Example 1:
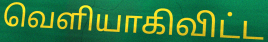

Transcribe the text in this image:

வெளியாகிவிட்ட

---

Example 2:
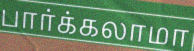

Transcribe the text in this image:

பார்க்கலாமா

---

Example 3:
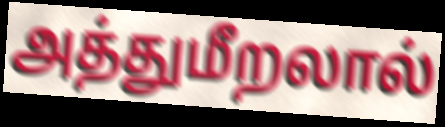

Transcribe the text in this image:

அத்துமீறலால்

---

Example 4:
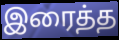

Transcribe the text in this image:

இரைத்த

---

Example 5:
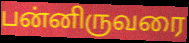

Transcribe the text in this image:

பன்னிருவரை